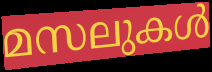
മസലുകൾ